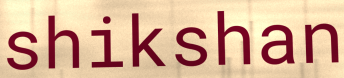
shikshan